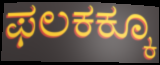
ಫಲಕಕ್ಕೂ